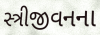
સ્ત્રીજીવનના